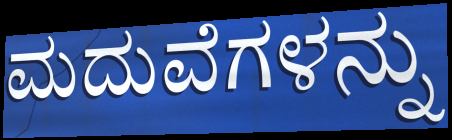
ಮದುವೆಗಳನ್ನು